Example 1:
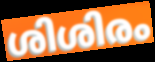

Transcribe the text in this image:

ശിശിരം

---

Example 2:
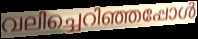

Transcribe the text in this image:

വലിച്ചെറിഞ്ഞപ്പോൾ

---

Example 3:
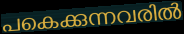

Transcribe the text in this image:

പകെക്കുന്നവരിൽ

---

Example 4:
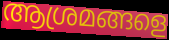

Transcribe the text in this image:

ആശ്രമങ്ങളെ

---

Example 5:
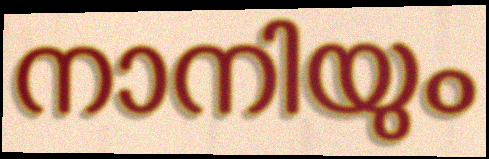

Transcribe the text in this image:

നാനിയും